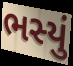
ભસ્યું